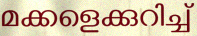
മക്കളെക്കുറിച്ച്